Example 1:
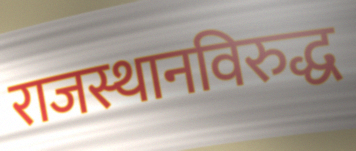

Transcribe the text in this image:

राजस्थानविरुद्ध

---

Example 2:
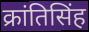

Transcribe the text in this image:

क्रांतिसिंह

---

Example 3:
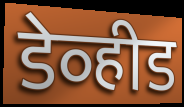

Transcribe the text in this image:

डेव्हीड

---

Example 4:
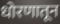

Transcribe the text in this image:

धोरणातून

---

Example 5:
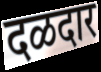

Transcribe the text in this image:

दळदार